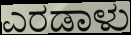
ಎರಡಾಳು